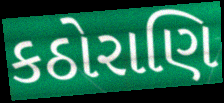
કઠોરાણિ